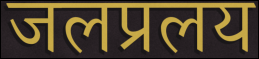
जलप्रलय